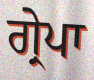
ਗ੍ਰੇਪਾ